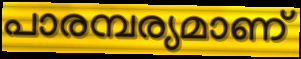
പാരമ്പര്യമാണ്